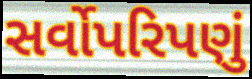
સર્વોપરિપણું